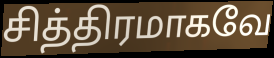
சித்திரமாகவே